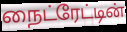
நைட்ரேட்டின்